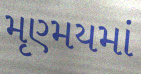
મૃણ્મયમાં